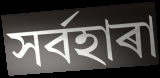
সৰ্বহাৰা